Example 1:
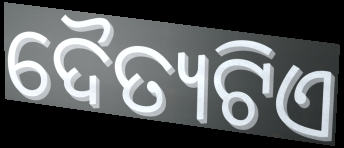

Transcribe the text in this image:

ଦୈତ୍ୟଟିଏ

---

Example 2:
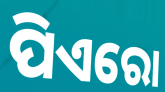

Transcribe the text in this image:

ପିଏରୋ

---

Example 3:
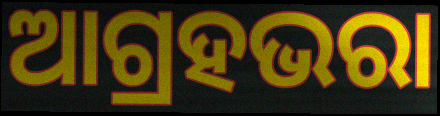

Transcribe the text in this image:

ଆଗ୍ରହଭରା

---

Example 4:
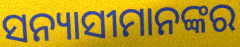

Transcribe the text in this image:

ସନ୍ୟାସୀମାନଙ୍କର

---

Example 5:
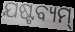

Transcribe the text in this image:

ଯଷ୍ଟବ୍ୟମ୍